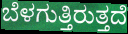
ಬೆಳಗುತ್ತಿರುತ್ತದೆ